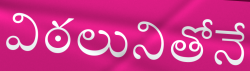
విఠలునితోనే